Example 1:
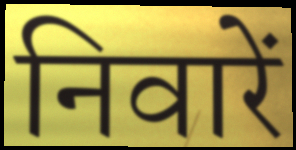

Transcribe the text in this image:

निवारें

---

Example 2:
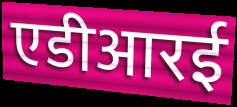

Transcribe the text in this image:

एडीआरई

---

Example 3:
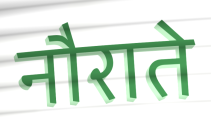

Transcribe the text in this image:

नौराते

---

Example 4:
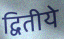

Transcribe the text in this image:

द्वितीये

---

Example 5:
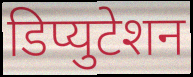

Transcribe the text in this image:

डिप्युटेशन